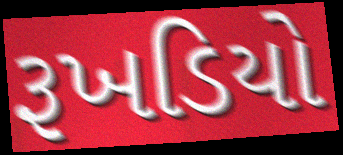
રૂખડિયો